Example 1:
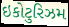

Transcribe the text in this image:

ઇકોટુરિઝમ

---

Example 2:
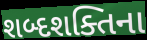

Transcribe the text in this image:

શબ્દશક્તિના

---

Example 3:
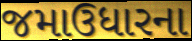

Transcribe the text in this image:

જમાઉધારના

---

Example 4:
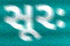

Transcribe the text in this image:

સૂરઃ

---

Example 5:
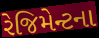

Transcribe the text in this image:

રેજિમેન્ટના